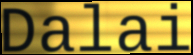
Dalai